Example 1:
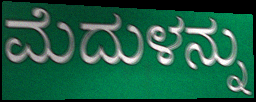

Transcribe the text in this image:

ಮೆದುಳನ್ನು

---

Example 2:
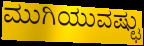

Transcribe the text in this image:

ಮುಗಿಯುವಷ್ಟು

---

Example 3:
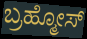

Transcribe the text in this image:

ಬ್ರಹ್ಮೋಸ್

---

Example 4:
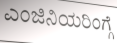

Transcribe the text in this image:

ಎಂಜಿನಿಯರಿಂಗ್ಗೆ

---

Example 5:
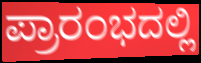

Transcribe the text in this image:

ಪ್ರಾರಂಭದಲ್ಲಿ